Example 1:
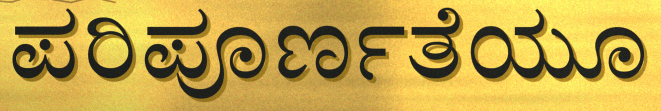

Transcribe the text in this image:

ಪರಿಪೂರ್ಣತೆಯೂ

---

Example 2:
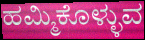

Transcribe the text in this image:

ಹಮ್ಮಿಕೊಳ್ಳುವ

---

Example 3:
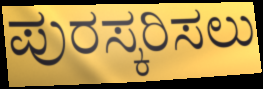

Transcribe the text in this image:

ಪುರಸ್ಕರಿಸಲು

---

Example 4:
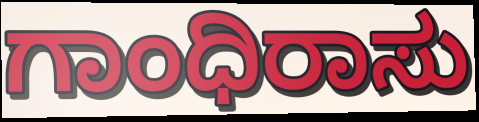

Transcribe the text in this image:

ಗಾಂಧಿರಾಸು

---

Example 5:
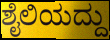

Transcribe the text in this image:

ಶೈಲಿಯದ್ದು